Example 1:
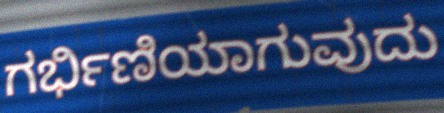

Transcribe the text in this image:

ಗರ್ಭಿಣಿಯಾಗುವುದು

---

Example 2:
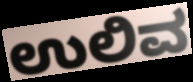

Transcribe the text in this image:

ಉಲಿವ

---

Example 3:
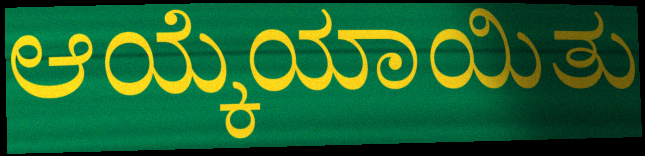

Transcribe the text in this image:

ಆಯ್ಕೆಯಾಯಿತು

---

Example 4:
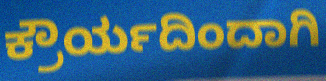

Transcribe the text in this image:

ಕ್ರೌರ್ಯದಿಂದಾಗಿ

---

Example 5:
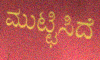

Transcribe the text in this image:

ಮುಟ್ಟಿಸಿದೆ